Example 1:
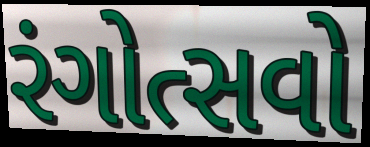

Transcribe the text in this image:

રંગોત્સવો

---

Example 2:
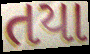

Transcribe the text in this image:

તયા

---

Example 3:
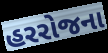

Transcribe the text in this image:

હરરોજના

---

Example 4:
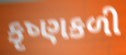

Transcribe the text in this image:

કૃષ્ણકળી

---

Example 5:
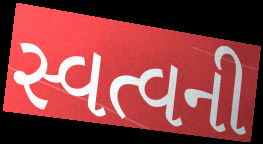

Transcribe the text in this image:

સ્વત્વની